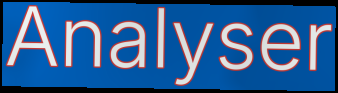
Analyser